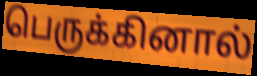
பெருக்கினால்